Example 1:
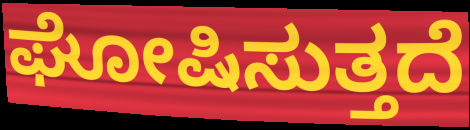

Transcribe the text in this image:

ಘೋಷಿಸುತ್ತದೆ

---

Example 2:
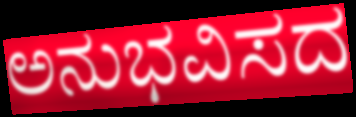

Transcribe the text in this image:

ಅನುಭವಿಸದ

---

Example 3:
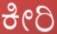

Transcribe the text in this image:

ಕೀರಿ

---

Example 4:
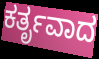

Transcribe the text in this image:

ಕರ್ತೃವಾದ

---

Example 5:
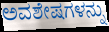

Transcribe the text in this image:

ಅವಶೇಷಗಳನ್ನು